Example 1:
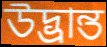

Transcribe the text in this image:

উদ্ভ্রান্ত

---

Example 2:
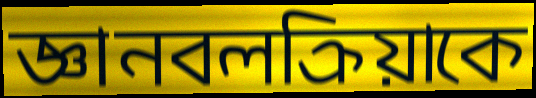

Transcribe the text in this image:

জ্ঞানবলক্রিয়াকে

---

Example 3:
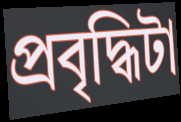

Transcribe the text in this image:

প্রবৃদ্ধিটা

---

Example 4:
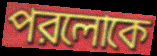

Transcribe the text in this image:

পরলোকে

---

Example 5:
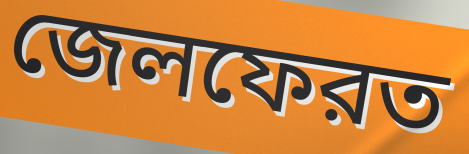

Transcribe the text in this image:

জেলফেরত